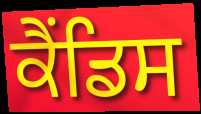
ਕੈਂਡਿਸ